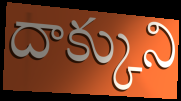
దాక్కుని